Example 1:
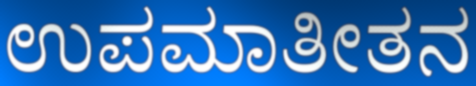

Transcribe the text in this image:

ಉಪಮಾತೀತನ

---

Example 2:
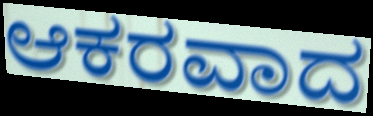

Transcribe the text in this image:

ಆಕರವಾದ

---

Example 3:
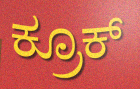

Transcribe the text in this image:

ಕ್ರೂಕ್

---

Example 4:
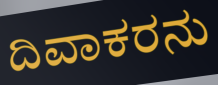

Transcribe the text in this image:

ದಿವಾಕರನು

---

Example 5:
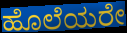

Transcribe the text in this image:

ಹೊಲೆಯರೇ